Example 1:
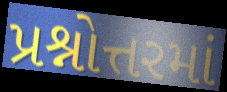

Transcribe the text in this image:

પ્રશ્નોત્તરમાં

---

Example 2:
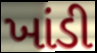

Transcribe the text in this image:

ખાંડી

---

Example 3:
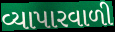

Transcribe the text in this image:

વ્યાપારવાળી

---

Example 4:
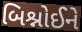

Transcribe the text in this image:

બિશ્નોઈને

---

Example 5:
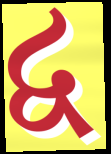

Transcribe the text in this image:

દ્વ